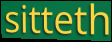
sitteth